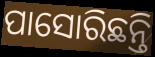
ପାସୋରିଛନ୍ତି